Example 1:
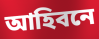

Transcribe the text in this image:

আহিবনে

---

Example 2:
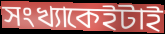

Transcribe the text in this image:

সংখ্যাকেইটাই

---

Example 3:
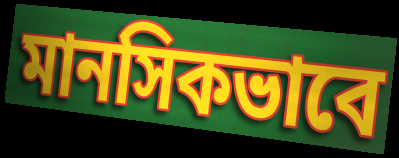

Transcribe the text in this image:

মানসিকভাবে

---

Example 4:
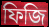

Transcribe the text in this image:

ফিজি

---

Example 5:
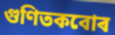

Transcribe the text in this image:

গুণিতকবোৰ